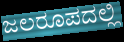
ಜಲರೂಪದಲ್ಲಿ